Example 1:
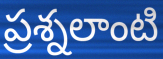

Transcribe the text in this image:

ప్రశ్నలాంటి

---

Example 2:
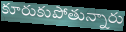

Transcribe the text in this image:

కూరుకుపోతున్నారు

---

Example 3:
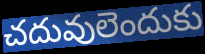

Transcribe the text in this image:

చదువులెందుకు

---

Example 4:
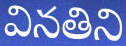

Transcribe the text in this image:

వినతిని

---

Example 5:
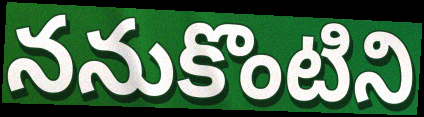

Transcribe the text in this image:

ననుకొంటిని